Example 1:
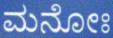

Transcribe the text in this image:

ಮನೋಃ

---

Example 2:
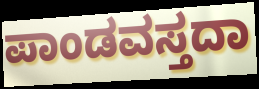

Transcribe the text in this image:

ಪಾಂಡವಸ್ತದಾ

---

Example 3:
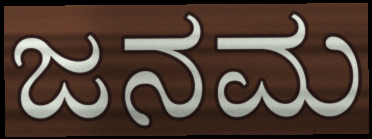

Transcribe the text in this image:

ಜನಮ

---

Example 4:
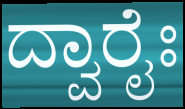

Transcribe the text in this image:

ದ್ವಾರೈಃ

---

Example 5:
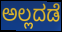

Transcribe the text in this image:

ಅಲ್ಲದಡೆ